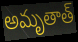
అమృతాత్